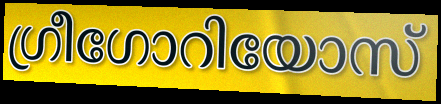
ഗ്രീഗോറിയോസ്